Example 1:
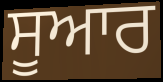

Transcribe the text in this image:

ਸੂਆਰ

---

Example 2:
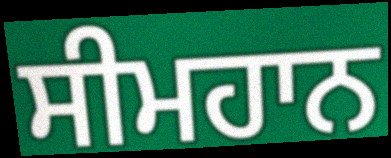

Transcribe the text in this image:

ਸੀਮਹਾਨ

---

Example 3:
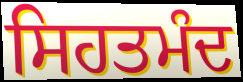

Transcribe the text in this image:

ਸਿਹਤਮੰਦ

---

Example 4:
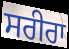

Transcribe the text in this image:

ਸਰੀਰਾ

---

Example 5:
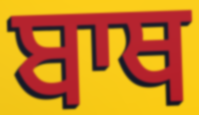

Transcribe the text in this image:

ਬਾਥ